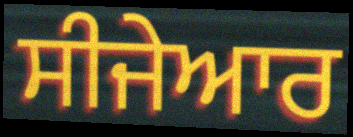
ਸੀਜੇਆਰ